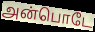
அன்பொடே